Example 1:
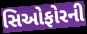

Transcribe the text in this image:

સિઓફોરની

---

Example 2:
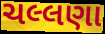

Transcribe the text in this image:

ચલ્લણા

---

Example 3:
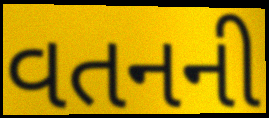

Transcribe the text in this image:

વતનની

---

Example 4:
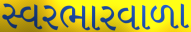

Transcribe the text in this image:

સ્વરભારવાળા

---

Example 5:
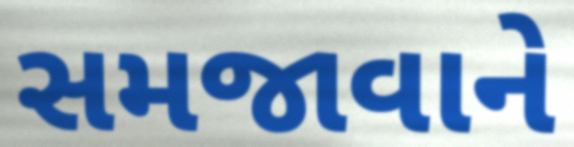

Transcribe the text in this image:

સમજાવાને